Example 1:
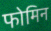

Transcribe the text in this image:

फोमिन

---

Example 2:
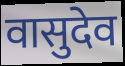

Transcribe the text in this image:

वासुदेव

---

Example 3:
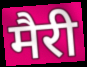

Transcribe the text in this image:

मैरी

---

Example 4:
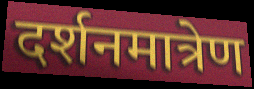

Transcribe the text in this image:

दर्शनमात्रेण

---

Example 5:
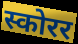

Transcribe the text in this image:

स्कोरर